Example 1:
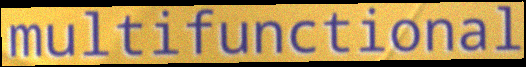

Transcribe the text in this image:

multifunctional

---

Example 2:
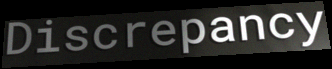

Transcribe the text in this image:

Discrepancy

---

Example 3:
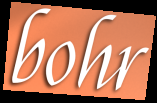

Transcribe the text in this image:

bohr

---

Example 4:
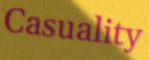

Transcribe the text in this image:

Casuality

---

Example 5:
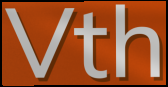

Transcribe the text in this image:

Vth